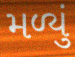
મળ્યું